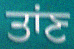
ਤਾਂਣ